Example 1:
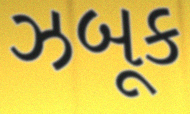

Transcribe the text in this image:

ઝબૂક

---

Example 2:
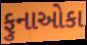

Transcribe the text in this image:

ફુનાઓકા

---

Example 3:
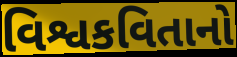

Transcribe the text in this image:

વિશ્વકવિતાનો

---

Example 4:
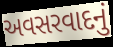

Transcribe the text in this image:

અવસરવાદનું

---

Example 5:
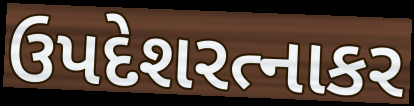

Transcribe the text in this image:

ઉપદેશરત્નાકર